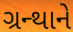
ગ્રન્થાને